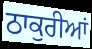
ਠਾਕੁਰੀਆਂ